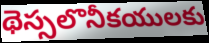
థెస్సలొనీకయులకు